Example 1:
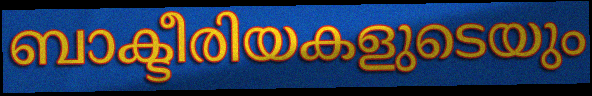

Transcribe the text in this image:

ബാക്ടീരിയകളുടെയും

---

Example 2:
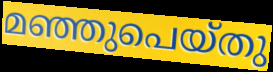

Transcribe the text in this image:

മഞ്ഞുപെയ്തു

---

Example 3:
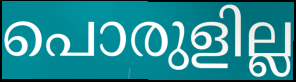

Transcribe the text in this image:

പൊരുളില്ല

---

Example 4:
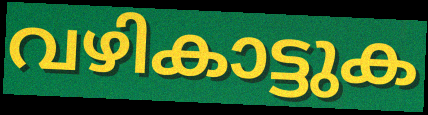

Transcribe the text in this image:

വഴികാട്ടുക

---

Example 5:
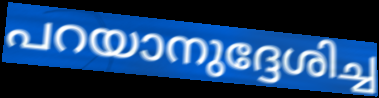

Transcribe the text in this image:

പറയാനുദ്ദേശിച്ച